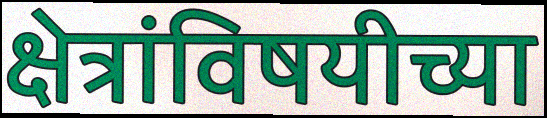
क्षेत्रांविषयीच्या